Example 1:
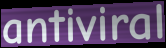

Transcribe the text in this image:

antiviral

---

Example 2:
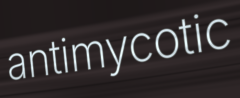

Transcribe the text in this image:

antimycotic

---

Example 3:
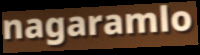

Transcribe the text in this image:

nagaramlo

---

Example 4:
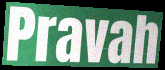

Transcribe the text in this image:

Pravah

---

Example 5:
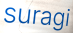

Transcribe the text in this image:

suragi